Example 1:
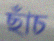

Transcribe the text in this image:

ছাঁচ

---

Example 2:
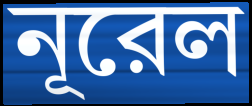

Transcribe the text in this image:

নূরেল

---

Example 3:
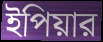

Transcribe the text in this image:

ইপিয়ার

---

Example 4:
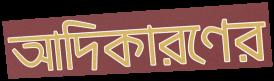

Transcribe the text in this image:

আদিকারণের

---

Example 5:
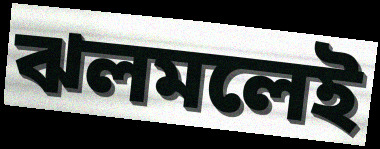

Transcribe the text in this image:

ঝলমলেই